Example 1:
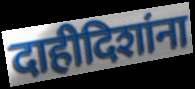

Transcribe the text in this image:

दाहीदिशांना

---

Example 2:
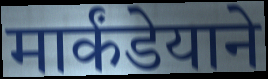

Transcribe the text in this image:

मार्कंडेयाने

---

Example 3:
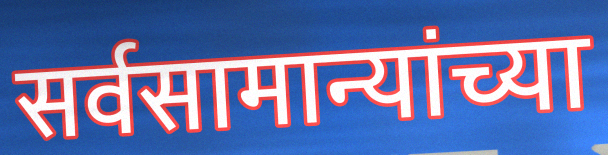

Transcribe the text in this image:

सर्वसामान्यांच्या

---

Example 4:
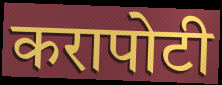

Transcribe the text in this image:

करापोटी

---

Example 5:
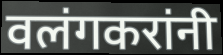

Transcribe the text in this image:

वलंगकरांनी